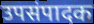
उपसंपादक